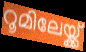
റൂമിലേയ്ക്ക്